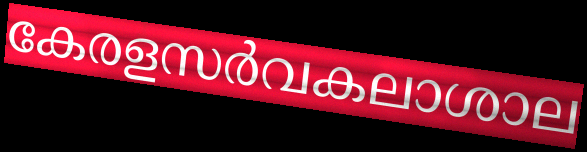
കേരളസർവകലാശാല